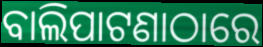
ବାଲିପାଟଣାଠାରେ